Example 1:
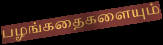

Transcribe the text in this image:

பழங்கதைகளையும்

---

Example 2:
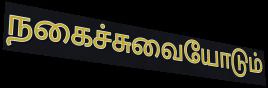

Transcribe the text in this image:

நகைச்சுவையோடும்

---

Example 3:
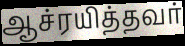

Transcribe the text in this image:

ஆச்ரயித்தவர்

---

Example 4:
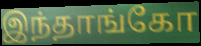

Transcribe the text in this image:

இந்தாங்கோ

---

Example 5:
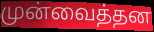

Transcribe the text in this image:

முன்வைத்தன